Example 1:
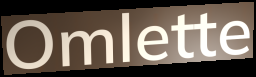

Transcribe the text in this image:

Omlette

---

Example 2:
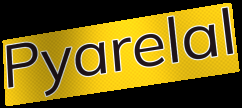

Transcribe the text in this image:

Pyarelal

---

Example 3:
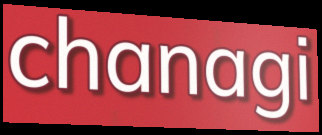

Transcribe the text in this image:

chanagi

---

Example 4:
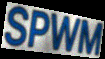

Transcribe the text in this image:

SPWM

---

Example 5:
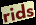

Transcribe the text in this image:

rids